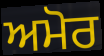
ਅਮੋਰ